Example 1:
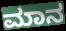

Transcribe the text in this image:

ಮಾನ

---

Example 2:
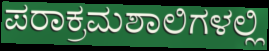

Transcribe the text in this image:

ಪರಾಕ್ರಮಶಾಲಿಗಳಲ್ಲಿ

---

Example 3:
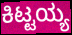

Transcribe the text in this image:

ಕಿಟ್ಟಯ್ಯ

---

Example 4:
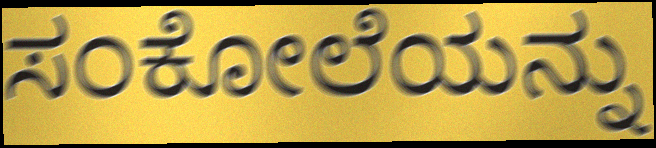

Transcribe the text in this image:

ಸಂಕೋಲೆಯನ್ನು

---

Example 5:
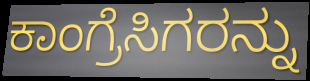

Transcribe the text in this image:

ಕಾಂಗ್ರೆಸಿಗರನ್ನು